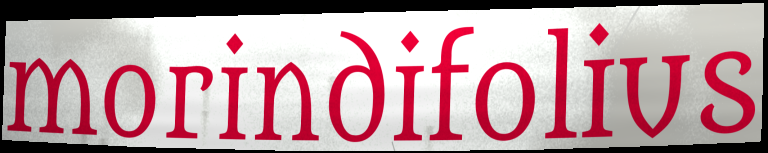
morindifolius